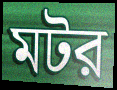
মটর